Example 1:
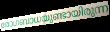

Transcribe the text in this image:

രോഗബാധയുണ്ടായിരുന്ന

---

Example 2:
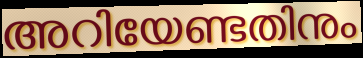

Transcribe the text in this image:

അറിയേണ്ടതിനും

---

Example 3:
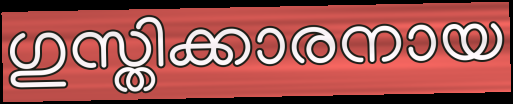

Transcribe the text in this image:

ഗുസ്തിക്കാരനായ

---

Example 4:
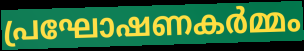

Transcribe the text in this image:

പ്രഘോഷണകർമ്മം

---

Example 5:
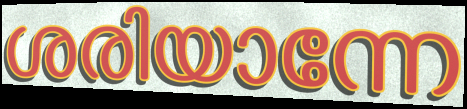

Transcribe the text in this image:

ശരിയാന്നേ